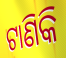
ଟାଣିକି